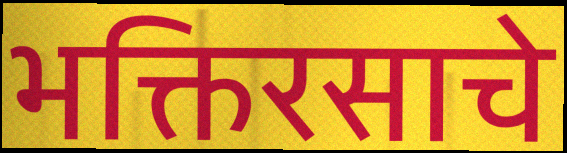
भक्तिरसाचे